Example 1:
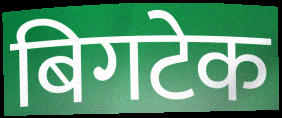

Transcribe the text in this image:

बिगटेक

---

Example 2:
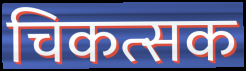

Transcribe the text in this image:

चिकत्सक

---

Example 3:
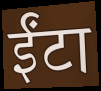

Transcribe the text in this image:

ईंटा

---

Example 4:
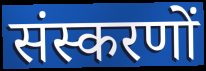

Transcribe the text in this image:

संस्करणों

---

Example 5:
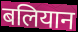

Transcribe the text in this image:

बलियान